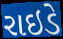
રાઇડે